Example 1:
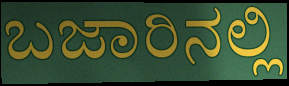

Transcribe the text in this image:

ಬಜಾರಿನಲ್ಲಿ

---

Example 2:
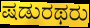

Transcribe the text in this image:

ಷಡುರಥರು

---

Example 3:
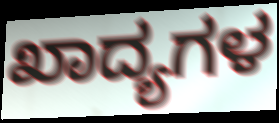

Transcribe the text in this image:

ಖಾದ್ಯಗಳ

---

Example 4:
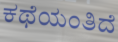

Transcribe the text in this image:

ಕಥೆಯಂತಿದೆ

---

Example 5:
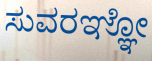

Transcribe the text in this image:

ಸುವರಞ್ಞೋ